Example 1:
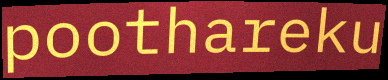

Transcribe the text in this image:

poothareku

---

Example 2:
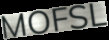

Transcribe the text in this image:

MOFSL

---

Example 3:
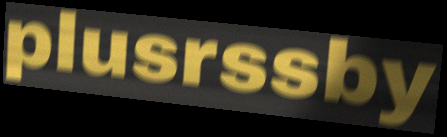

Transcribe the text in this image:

plusrssby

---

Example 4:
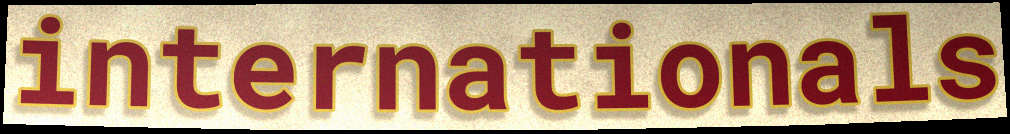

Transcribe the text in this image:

internationals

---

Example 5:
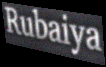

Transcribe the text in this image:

Rubaiya